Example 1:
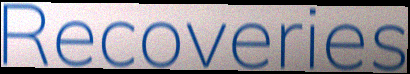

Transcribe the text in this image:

Recoveries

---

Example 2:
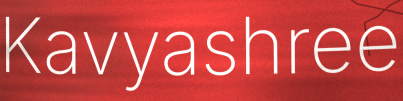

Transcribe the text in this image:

Kavyashree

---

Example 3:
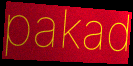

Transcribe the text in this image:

pakad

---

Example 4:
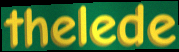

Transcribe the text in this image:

thelede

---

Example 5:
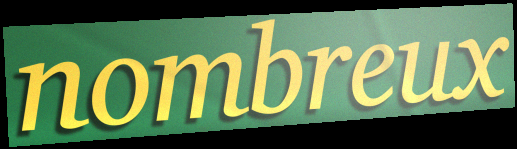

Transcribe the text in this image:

nombreux